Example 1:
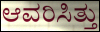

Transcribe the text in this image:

ಆವರಿಸಿತ್ತು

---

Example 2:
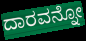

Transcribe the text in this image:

ದಾರವನ್ನೋ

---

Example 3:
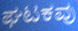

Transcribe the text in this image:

ಘಟಕವು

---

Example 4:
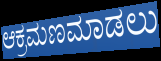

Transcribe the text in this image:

ಆಕ್ರಮಣಮಾಡಲು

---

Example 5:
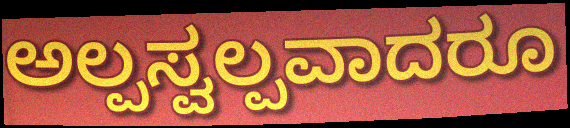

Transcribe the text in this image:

ಅಲ್ಪಸ್ವಲ್ಪವಾದರೂ